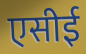
एसीई